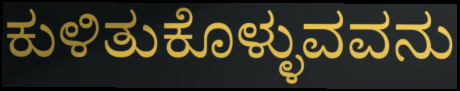
ಕುಳಿತುಕೊಳ್ಳುವವನು